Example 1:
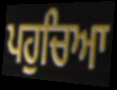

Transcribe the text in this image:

ਪਹੁਚਿਆ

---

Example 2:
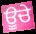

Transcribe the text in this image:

ਊਚੇ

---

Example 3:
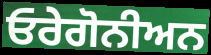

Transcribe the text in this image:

ਓਰੇਗੋਨੀਅਨ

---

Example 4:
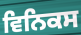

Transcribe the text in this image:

ਵਿਨਿਕਸ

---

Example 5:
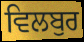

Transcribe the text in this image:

ਵਿਲਬੁਰ